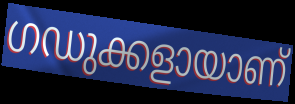
ഗഡുക്കളായാണ്